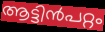
ആട്ടിൻപറ്റം